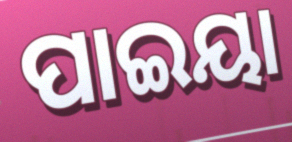
ପାଇୟା